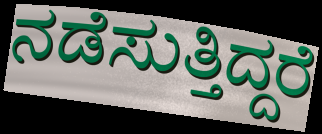
ನಡೆಸುತ್ತಿದ್ದರೆ